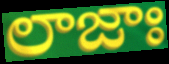
లాజాః